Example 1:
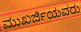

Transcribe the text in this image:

ಮುಖರ್ಜಿಯವರು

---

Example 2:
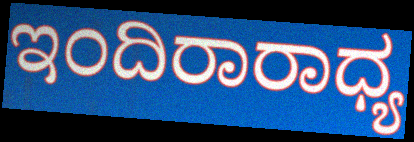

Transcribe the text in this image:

ಇಂದಿರಾರಾಧ್ಯ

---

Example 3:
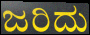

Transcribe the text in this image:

ಜರಿದು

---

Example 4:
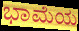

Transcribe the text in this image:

ಭಾಮೆಯ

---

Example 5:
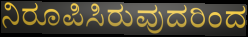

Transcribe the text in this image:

ನಿರೂಪಿಸಿರುವುದರಿಂದ